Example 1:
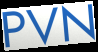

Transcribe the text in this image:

PVN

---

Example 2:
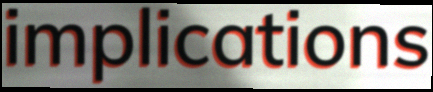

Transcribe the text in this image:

implications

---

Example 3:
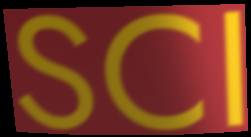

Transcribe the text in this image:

SCI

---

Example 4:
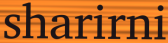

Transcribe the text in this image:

sharirni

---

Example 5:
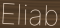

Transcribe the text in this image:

Eliab